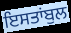
ਇਸਤਾਂਬੁਲ